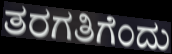
ತರಗತಿಗೆಂದು